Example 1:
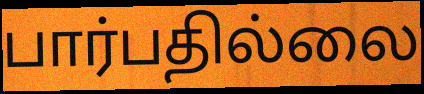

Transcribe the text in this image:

பார்பதில்லை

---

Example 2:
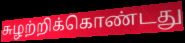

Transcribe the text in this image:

சுழற்றிக்கொண்டது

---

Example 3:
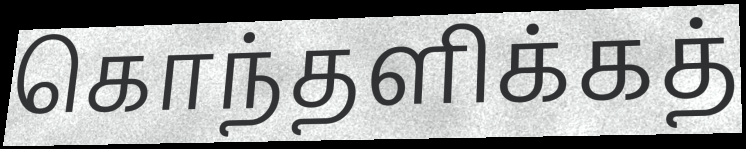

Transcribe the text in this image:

கொந்தளிக்கத்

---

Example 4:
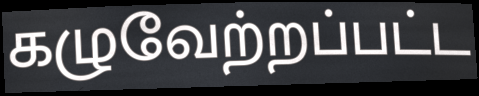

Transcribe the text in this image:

கழுவேற்றப்பட்ட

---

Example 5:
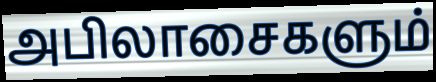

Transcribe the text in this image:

அபிலாசைகளும்